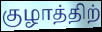
குழாத்திற்